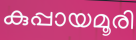
കുപ്പായമൂരി